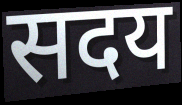
सदय